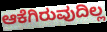
ಆಕೆಗಿರುವುದಿಲ್ಲ